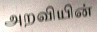
அறவியின்